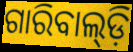
ଗାରିବାଲ୍‌ଡ଼ି